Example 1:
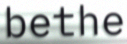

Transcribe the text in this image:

bethe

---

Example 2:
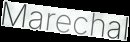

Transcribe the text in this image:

Marechal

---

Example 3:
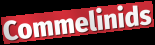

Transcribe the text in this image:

Commelinids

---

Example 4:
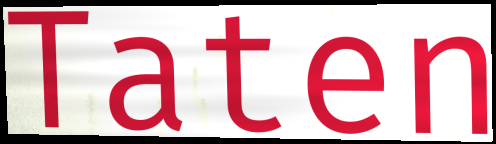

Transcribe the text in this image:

Taten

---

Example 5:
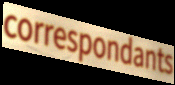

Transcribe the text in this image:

correspondants